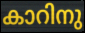
കാറിനു